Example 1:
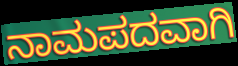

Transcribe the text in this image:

ನಾಮಪದವಾಗಿ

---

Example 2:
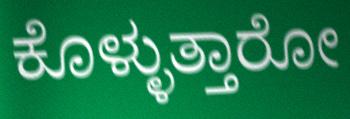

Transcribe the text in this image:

ಕೊಳ್ಳುತ್ತಾರೋ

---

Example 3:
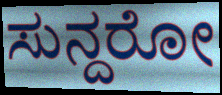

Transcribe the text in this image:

ಸುನ್ದರೋ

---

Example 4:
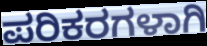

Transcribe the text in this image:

ಪರಿಕರಗಳಾಗಿ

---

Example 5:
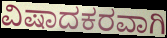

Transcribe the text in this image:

ವಿಷಾದಕರವಾಗಿ